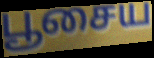
பூசைய